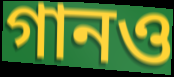
গানও